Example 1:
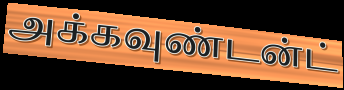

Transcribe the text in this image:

அக்கவுண்டன்ட்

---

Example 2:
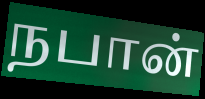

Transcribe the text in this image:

நபான்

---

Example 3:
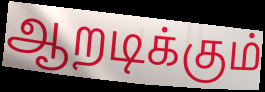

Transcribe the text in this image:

ஆறடிக்கும்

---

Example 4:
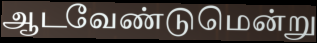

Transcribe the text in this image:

ஆடவேண்டுமென்று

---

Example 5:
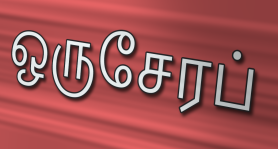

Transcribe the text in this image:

ஒருசேரப்